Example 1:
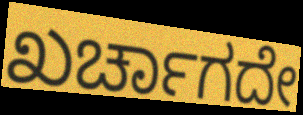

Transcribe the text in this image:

ಖರ್ಚಾಗದೇ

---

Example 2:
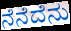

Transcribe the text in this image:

ನೆನೆದೆನು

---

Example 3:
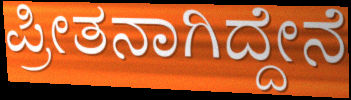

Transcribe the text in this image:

ಪ್ರೀತನಾಗಿದ್ದೇನೆ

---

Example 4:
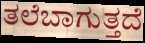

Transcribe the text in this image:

ತಲೆಬಾಗುತ್ತದೆ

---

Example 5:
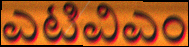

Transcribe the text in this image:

ಎಟಿವಿಎಂ